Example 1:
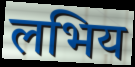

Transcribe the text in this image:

लभिय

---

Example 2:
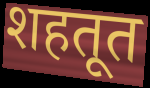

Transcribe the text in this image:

शहतूत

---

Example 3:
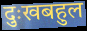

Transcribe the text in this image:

दुःखबहुल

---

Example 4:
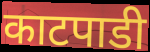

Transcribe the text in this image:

काटपाडी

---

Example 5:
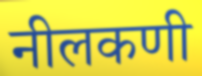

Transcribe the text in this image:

नीलकणी